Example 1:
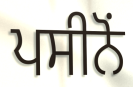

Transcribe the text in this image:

ਪਸੀਨੋਂ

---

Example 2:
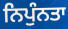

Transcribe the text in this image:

ਨਿਪੁੰਨਤਾ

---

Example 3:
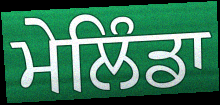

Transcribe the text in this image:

ਮੇਲਿੰਡਾ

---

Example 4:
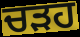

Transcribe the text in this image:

ਚੜਹ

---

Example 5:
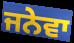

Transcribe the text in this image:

ਜਨੇਵਾ